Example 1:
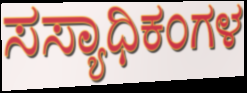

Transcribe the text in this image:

ಸಸ್ಯಾಧಿಕಂಗಳ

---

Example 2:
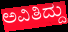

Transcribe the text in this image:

ಅವಿತಿದ್ದು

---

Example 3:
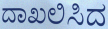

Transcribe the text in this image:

ದಾಖಲಿಸಿದ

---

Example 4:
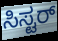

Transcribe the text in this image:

ಸಿಸ್ಟರ್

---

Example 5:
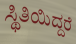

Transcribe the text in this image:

ಸ್ಥಿತಿಯಿದ್ದರೆ